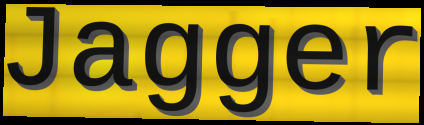
Jagger